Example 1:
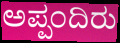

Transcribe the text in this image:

ಅಪ್ಪಂದಿರು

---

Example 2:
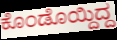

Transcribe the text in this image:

ಕೊಂಡೊಯ್ದಿದ್ದ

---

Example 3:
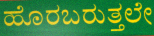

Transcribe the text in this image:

ಹೊರಬರುತ್ತಲೇ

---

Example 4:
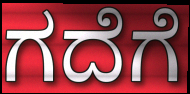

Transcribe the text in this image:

ಗದೆಗೆ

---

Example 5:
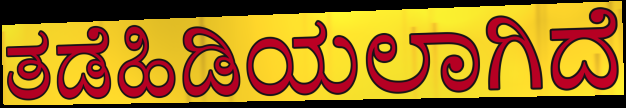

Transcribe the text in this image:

ತಡೆಹಿಡಿಯಲಾಗಿದೆ